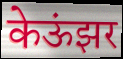
केऊंझर